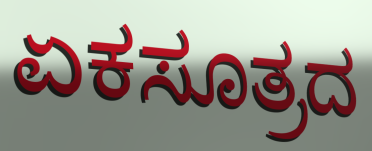
ಏಕಸೂತ್ರದ